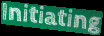
Initiating